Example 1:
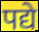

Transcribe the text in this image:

पद्ये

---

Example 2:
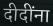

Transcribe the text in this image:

दीदींना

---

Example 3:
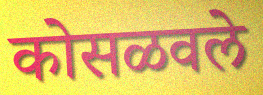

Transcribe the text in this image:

कोसळवले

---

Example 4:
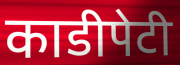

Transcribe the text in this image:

काडीपेटी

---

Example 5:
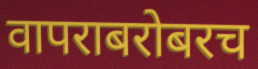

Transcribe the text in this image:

वापराबरोबरच